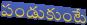
పండుకుంటే